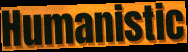
Humanistic